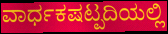
ವಾರ್ಧಕಷಟ್ಪದಿಯಲ್ಲಿ